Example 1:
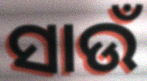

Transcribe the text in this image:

ସାଉଁ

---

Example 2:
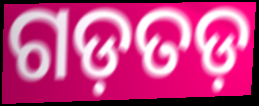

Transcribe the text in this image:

ଗଡ଼ତଡ଼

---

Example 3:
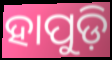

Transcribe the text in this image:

ହାପୁଡ଼ି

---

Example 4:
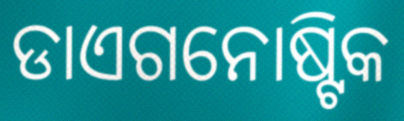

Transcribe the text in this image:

ଡାଏଗନୋଷ୍ଟିକ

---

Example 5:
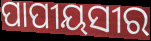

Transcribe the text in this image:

ପାପୀୟସୀର